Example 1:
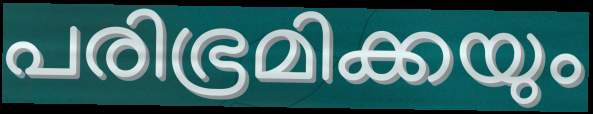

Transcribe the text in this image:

പരിഭ്രമിക്കയും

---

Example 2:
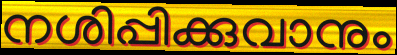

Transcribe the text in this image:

നശിപ്പിക്കുവാനും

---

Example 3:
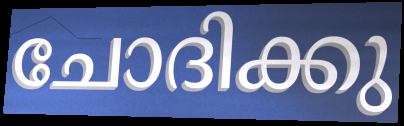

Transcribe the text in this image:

ചോദിക്കു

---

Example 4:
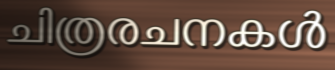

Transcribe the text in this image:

ചിത്രരചനകൾ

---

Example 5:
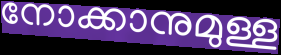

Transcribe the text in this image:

നോക്കാനുമുള്ള